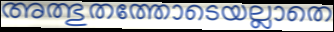
അത്ഭുതത്തോടെയല്ലാതെ